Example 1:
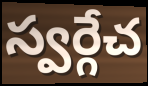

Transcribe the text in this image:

స్వర్గేచ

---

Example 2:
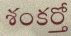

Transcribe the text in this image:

శంకర్తో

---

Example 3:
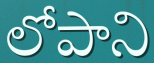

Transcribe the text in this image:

లోపాని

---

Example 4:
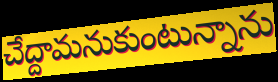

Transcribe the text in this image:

చేద్దామనుకుంటున్నాను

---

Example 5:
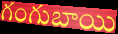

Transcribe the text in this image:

గంగుబాయి